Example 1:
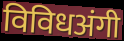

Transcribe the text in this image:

विविधअंगी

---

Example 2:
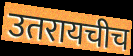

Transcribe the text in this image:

उतरायचीच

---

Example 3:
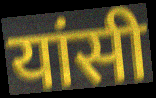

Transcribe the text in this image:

यांसी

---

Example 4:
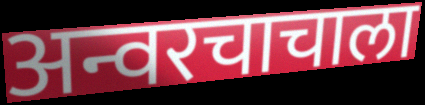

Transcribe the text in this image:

अन्वरचाचाला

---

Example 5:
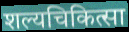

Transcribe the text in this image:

शल्‍यचिकित्‍सा